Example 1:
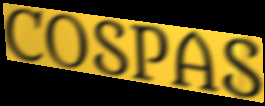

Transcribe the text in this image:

COSPAS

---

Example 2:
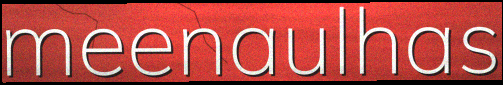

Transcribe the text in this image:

meenaulhas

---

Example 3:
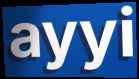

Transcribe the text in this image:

ayyi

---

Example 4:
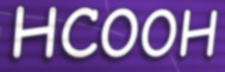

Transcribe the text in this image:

HCOOH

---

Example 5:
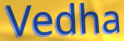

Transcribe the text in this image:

Vedha